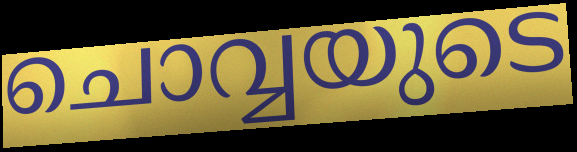
ചൊവ്വയുടെ